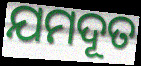
ଯମଦୂତ